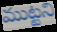
ముట్టని